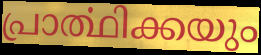
പ്രാൎത്ഥിക്കയും